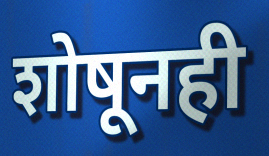
शोषूनही